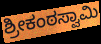
ಶ್ರೀಕಂಠಸ್ವಾಮಿ